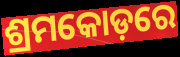
ଶ୍ରମକୋଡ଼ରେ